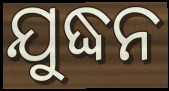
ଯୁଦ୍ଧନ